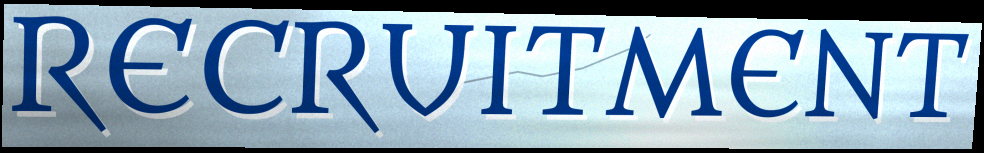
RECRUITMENT